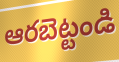
ఆరబెట్టండి